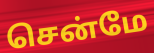
சென்மே